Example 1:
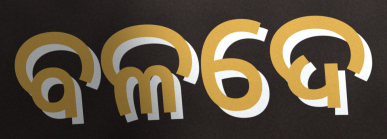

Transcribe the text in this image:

ବଳଦେ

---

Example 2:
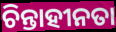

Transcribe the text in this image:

ଚିନ୍ତାହୀନତା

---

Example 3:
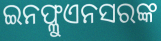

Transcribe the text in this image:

ଇନଫ୍ଳୁଏନସରଙ୍କ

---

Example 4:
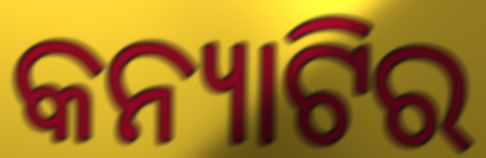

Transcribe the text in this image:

କନ୍ୟାଟିର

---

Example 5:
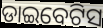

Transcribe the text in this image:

ଡାଇବେଟିସ